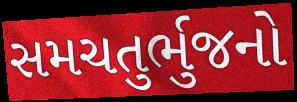
સમચતુર્ભુજનો